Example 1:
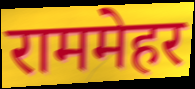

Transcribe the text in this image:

राममेहर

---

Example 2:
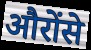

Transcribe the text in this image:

औरोंसे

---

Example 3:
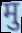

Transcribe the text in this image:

मु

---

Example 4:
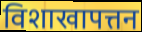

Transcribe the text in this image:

विशाखापत्तन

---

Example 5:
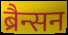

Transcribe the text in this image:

ब्रैन्सन